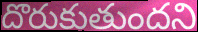
దొరుకుతుందని